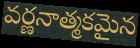
వర్ణనాత్మకమైన